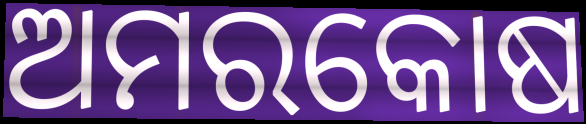
ଅମରକୋଷ